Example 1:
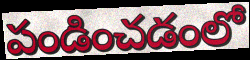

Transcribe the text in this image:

పండించడంలో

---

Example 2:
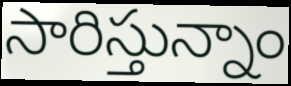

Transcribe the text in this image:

సారిస్తున్నాం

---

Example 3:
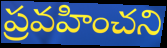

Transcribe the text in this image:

ప్రవహించని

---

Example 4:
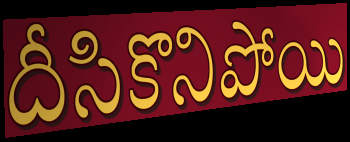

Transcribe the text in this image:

దీసికొనిపోయి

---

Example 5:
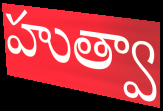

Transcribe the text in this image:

హుత్వా